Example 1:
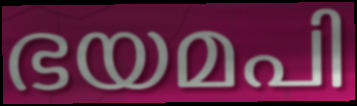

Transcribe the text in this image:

ഭയമപി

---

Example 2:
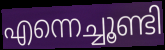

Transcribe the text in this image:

എന്നെച്ചൂണ്ടി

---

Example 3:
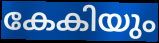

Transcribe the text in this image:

കേകിയും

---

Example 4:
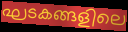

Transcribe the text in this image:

ഘടകങ്ങളിലെ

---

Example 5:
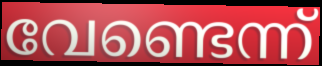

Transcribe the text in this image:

വേണ്ടെന്ന്